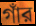
গাঁর